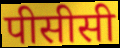
पीसीसी